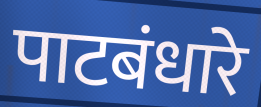
पाटबंधारे